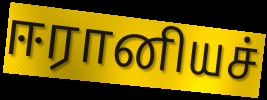
ஈரானியச்